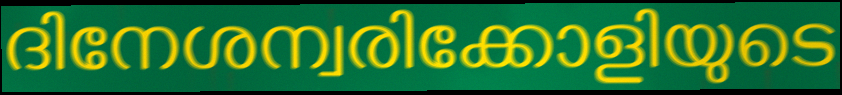
ദിനേശന്വരിക്കോളിയുടെ